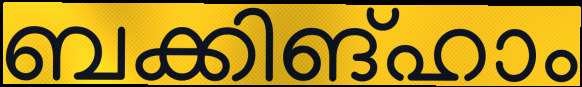
ബക്കിങ്ഹാം